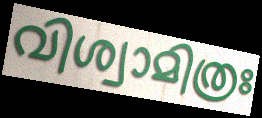
വിശ്വാമിത്രഃ